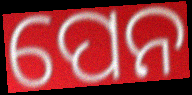
ପେନ